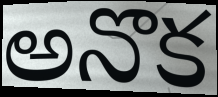
అనొక